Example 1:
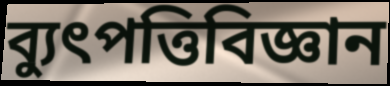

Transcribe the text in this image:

ব্যুৎপত্তিবিজ্ঞান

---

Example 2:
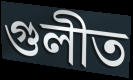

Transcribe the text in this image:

গুলীত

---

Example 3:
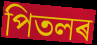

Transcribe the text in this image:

পিতলৰ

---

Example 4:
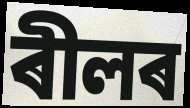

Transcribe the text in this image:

ৰীলৰ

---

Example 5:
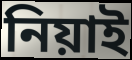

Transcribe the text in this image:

নিয়াই